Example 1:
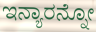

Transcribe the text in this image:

ಇನ್ಯಾರನ್ನೋ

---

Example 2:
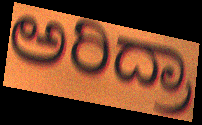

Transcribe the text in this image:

ಅರಿದ್ರಾ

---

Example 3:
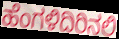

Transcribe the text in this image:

ಹೆಂಗಳಿದಿರಿನಲಿ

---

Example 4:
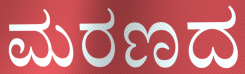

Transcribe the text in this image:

ಮರಣದ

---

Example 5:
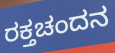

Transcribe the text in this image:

ರಕ್ತಚಂದನ